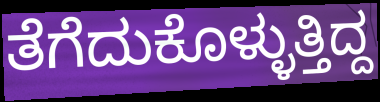
ತೆಗೆದುಕೊಳ್ಳುತ್ತಿದ್ದ